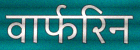
वार्फरिन